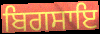
ਬਿਗਸਾਇ